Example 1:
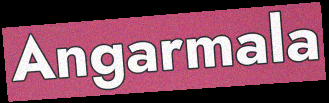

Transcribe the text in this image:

Angarmala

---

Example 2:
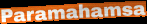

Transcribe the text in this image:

Paramahamsa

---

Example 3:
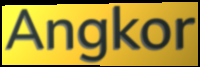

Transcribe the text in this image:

Angkor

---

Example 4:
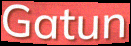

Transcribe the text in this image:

Gatun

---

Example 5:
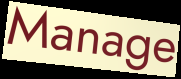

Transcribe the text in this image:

Manage